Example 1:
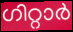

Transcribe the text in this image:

ഗിറ്റാർ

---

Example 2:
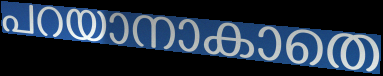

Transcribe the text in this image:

പറയാനാകാതെ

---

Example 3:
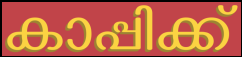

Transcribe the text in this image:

കാപ്പിക്ക്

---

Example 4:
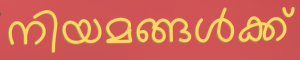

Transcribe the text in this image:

നിയമങ്ങൾക്ക്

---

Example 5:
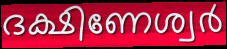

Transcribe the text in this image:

ദക്ഷിണേശ്വർ